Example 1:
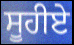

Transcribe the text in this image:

ਸੂਹੀਏ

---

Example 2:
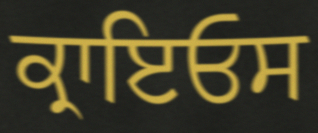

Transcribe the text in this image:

ਕ੍ਰਾਇਓਸ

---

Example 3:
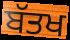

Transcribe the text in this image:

ਬੱਤਖ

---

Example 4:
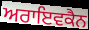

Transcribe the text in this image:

ਅਰਾਇਵਕੈਨ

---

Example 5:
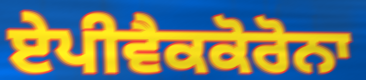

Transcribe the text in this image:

ਏਪੀਵੈਕਕੋਰੋਨਾ